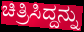
ಚಿತ್ರಿಸಿದ್ದನ್ನು